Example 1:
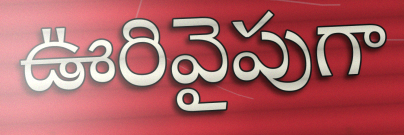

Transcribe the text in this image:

ఊరివైపుగా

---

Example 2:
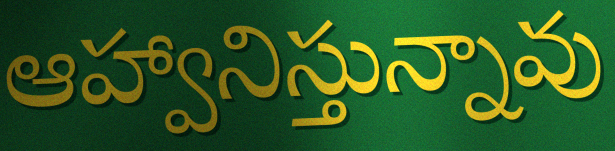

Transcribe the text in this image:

ఆహ్వానిస్తున్నావు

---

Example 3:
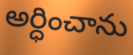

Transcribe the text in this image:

అర్ధించాను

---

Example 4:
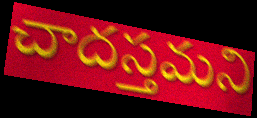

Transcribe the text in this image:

చాదస్తమని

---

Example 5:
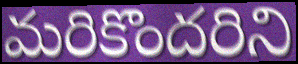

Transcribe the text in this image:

మరికొందరిని